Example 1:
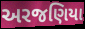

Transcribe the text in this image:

અરજણિયા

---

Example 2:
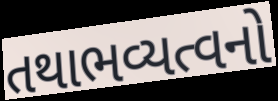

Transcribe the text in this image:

તથાભવ્યત્વનો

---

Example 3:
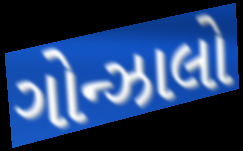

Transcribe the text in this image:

ગોન્ઝાલો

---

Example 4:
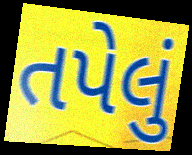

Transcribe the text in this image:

તપેલું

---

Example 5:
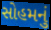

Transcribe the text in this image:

સોહમનું